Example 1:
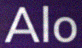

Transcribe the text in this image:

Alo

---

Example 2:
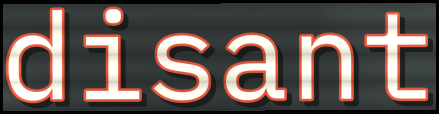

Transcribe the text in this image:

disant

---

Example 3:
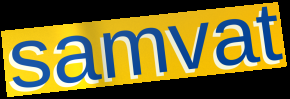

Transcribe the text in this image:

samvat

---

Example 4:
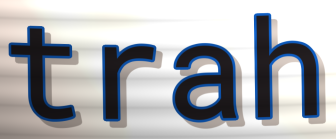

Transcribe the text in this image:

trah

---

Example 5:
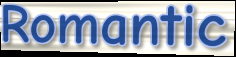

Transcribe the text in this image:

Romantic